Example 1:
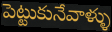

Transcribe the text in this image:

పెట్టుకునేవాళ్ళు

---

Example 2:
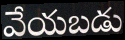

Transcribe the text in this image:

వేయబడు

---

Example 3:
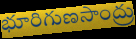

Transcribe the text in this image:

భూరిగుణసాంద్రు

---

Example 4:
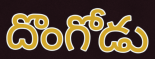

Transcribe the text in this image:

దొంగోడు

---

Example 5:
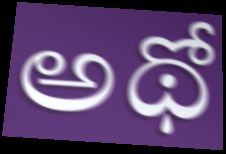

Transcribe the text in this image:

అథో